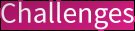
Challenges